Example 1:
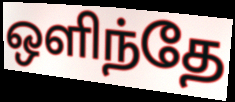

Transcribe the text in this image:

ஒளிந்தே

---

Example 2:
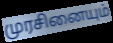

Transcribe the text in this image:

முரசினையும்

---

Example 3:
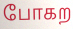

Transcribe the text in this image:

போகற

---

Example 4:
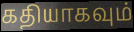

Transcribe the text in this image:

கதியாகவும்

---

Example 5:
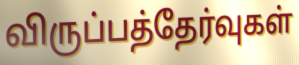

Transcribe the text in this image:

விருப்பத்தேர்வுகள்